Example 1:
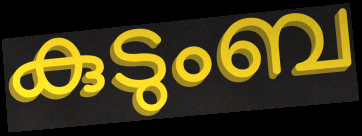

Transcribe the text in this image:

കുടുംബ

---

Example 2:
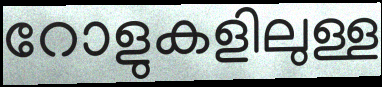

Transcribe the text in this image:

റോളുകളിലുള്ള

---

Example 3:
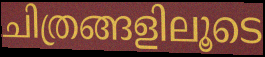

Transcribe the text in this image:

ചിത്രങ്ങളിലൂടെ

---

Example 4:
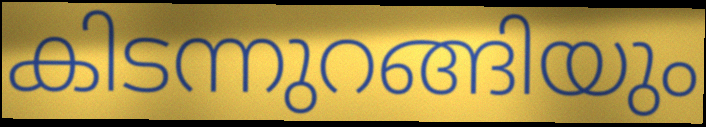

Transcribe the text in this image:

കിടന്നുറങ്ങിയും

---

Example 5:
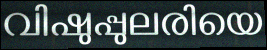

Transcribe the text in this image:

വിഷുപ്പുലരിയെ